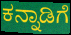
ಕನ್ನಾಡಿಗೆ